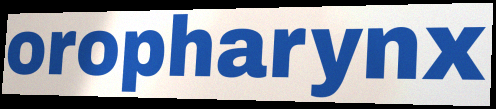
oropharynx